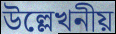
উল্লেখনীয়